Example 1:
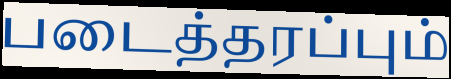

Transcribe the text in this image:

படைத்தரப்பும்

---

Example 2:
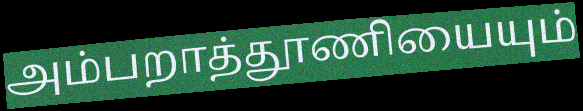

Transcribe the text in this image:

அம்பறாத்தூணியையும்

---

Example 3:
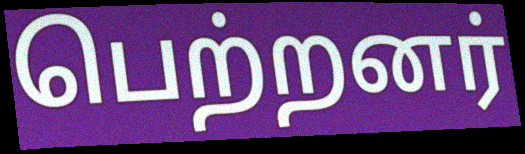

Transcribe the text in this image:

பெற்றனர்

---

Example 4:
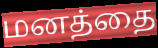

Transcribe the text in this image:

மனத்தை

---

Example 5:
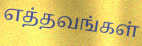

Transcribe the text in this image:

எத்தவங்கள்